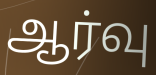
ஆர்வு